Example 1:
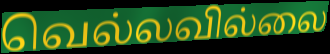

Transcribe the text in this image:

வெல்லவில்லை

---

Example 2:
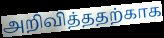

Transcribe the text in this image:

அறிவித்ததற்காக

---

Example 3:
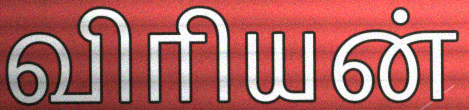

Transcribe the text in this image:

விரியன்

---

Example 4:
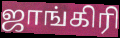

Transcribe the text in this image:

ஜாங்கிரி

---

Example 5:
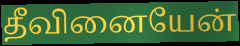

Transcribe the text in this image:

தீவினையேன்